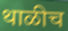
थाळीच